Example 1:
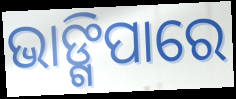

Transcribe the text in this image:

ଭାଙ୍ଗିପାରେ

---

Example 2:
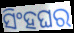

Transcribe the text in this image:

ସିଂହଘର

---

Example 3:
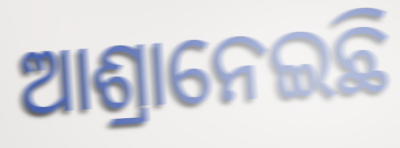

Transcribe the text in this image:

ଆଶ୍ରାନେଇଛି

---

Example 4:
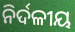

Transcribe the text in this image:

ନିର୍ଦଳୀୟ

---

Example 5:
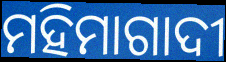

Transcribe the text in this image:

ମହିମାଗାଦୀ